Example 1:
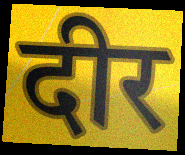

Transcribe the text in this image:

दीर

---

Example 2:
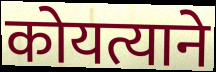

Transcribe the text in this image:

कोयत्याने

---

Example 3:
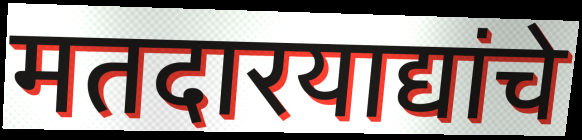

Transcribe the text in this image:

मतदारयाद्यांचे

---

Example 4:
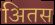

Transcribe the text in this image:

अितस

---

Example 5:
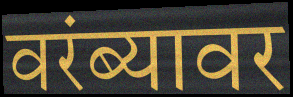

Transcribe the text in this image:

वरंब्यावर